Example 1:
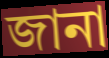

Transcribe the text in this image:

জানা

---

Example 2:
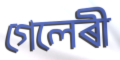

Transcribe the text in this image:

গেলেৰী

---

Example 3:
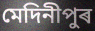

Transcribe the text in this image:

মেদিনীপুৰ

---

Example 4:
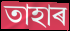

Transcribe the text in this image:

তাহাৰ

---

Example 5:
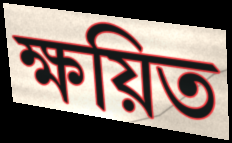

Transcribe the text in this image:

ক্ষয়িত